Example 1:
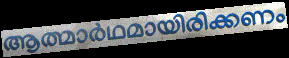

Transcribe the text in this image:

ആത്മാർഥമായിരിക്കണം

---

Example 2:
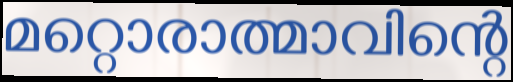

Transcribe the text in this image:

മറ്റൊരാത്മാവിന്റെ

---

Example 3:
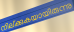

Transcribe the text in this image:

നില്ക്കുകയായിരുന്നു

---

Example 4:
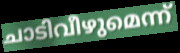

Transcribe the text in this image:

ചാടിവീഴുമെന്ന്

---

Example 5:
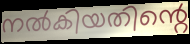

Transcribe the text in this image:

നൽകിയതിന്റെ